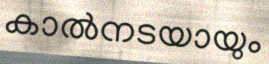
കാൽനടയായും